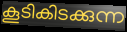
കൂടികിടക്കുന്ന